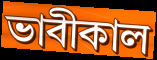
ভাবীকাল